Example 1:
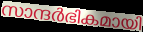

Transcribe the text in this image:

സാന്ദർഭികമായി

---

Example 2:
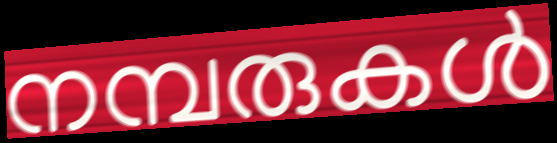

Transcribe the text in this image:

നമ്പരുകൾ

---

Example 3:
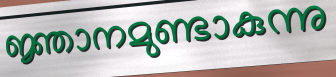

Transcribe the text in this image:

ജ്ഞാനമുണ്ടാകുന്നു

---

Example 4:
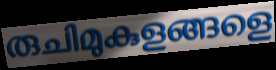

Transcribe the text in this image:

രുചിമുകുളങ്ങളെ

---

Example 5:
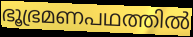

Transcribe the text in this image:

ഭൂഭ്രമണപഥത്തിൽ